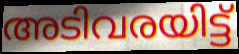
അടിവരയിട്ട്